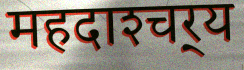
महदाश्चर्य